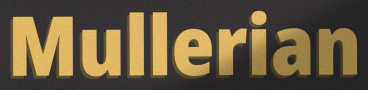
Mullerian